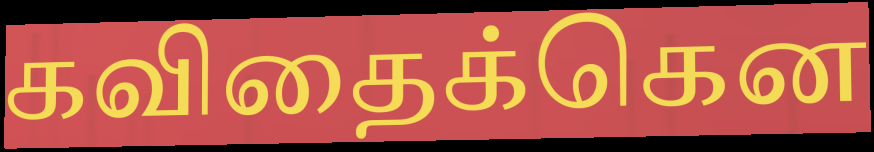
கவிதைக்கென